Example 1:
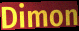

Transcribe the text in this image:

Dimon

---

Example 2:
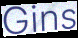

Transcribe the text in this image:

Gins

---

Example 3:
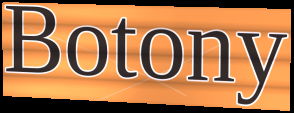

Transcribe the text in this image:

Botony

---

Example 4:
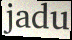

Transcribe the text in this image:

jadu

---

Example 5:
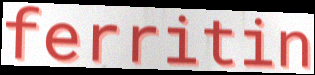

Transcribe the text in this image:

ferritin